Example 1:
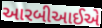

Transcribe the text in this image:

આરબીઆઈએ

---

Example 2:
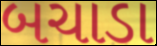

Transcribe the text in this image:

બચાડા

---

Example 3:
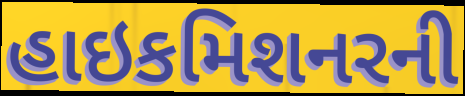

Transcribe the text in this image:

હાઇકમિશનરની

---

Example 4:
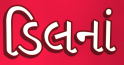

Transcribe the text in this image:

ડિલનાં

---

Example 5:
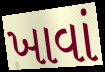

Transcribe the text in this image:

ખાવાં